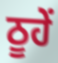
ਠੂਹੇਂ